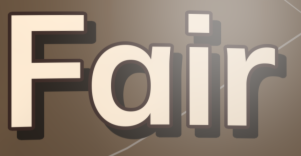
Fair